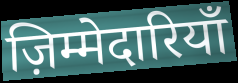
ज़िम्मेदारियाँ